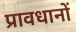
प्रावधानों